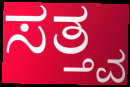
ಸತ್ತ್ವ